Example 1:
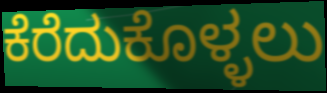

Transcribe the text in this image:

ಕೆರೆದುಕೊಳ್ಳಲು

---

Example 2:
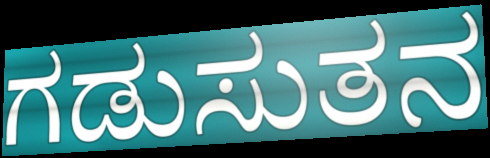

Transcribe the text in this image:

ಗಡುಸುತನ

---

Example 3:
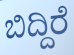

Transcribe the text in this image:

ಬಿದ್ದಿರೆ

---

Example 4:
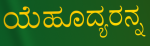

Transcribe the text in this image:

ಯೆಹೂದ್ಯರನ್ನ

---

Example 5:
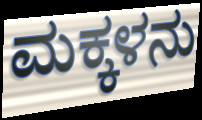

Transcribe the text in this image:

ಮಕ್ಕಳನು